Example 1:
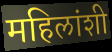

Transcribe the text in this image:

महिलांशी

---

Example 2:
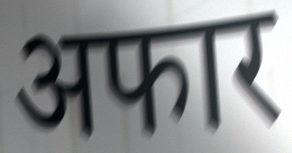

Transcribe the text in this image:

अफार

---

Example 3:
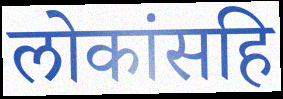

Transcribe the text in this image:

लोकांसहि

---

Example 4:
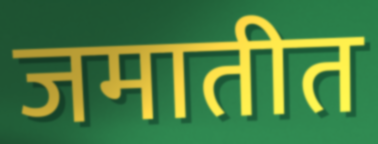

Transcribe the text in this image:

जमातीत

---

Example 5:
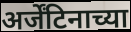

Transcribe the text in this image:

अर्जेंटिनाच्या